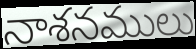
నాశనములు